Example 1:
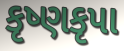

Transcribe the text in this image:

કૃષ્ણકૃપા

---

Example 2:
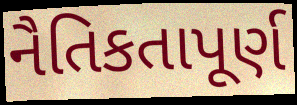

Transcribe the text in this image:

નૈતિકતાપૂર્ણ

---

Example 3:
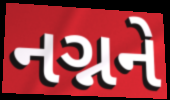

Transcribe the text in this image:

નગ્નને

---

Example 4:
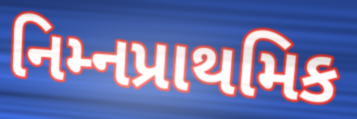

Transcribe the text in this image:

નિમ્નપ્રાથમિક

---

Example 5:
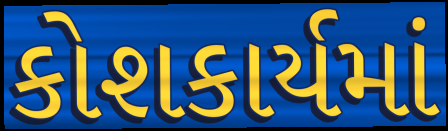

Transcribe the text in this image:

કોશકાર્યમાં